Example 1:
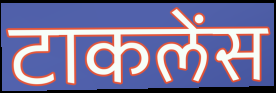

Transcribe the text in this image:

टाकलेंस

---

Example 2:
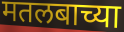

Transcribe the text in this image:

मतलबाच्या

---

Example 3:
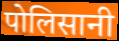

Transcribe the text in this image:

पोलिसानी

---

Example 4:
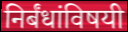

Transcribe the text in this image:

निर्बंधांविषयी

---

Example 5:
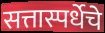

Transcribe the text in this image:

सत्तास्पर्धेचे